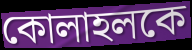
কোলাহলকে